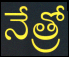
నేత్రో